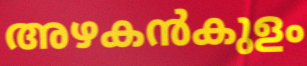
അഴകൻകുളം